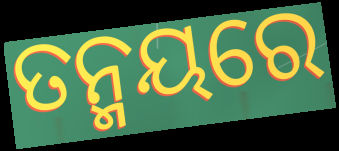
ତନ୍ମୟରେ